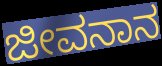
ಜೀವನಾನ